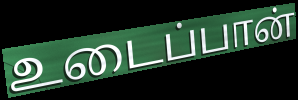
உடைப்பான்